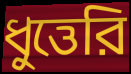
ধুত্তেরি